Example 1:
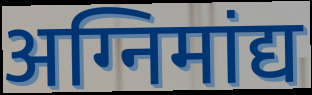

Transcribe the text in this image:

अग्निमांद्य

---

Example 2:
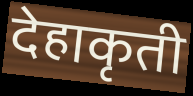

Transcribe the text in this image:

देहाकृती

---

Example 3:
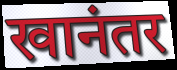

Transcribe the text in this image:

खानंतर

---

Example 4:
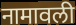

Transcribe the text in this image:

नामावली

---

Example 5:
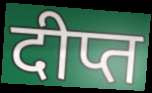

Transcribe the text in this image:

दीप्त